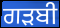
ਗੜਬੀ